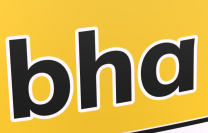
bha